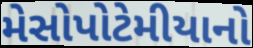
મેસોપોટેમીયાનો